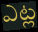
ఎట్ల